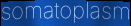
somatoplasm